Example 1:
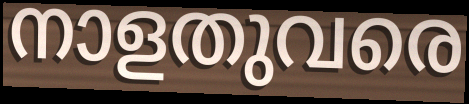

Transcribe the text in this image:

നാളതുവരെ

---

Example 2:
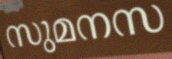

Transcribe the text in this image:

സുമനസ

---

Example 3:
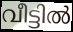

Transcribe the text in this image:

വീട്ടിൽ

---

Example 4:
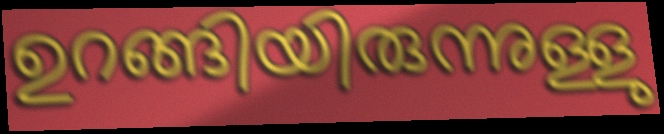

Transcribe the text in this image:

ഉറങ്ങിയിരുന്നുള്ളു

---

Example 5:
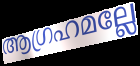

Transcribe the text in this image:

ആഗ്രഹമല്ലേ